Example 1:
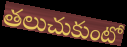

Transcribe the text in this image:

తలుచుకుంటో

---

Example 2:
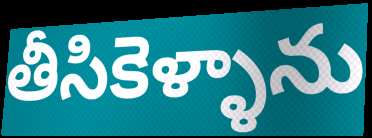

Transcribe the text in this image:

తీసికెళ్ళాను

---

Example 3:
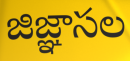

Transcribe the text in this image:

జిజ్ఞాసల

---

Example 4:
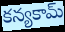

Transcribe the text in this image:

కన్యకామ్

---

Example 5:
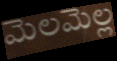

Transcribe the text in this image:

మెలమెల్ల